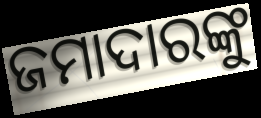
ଜମାଦାରଙ୍କୁ